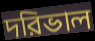
দরিভাল